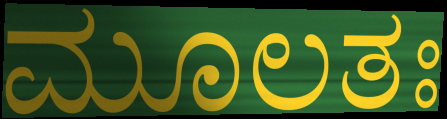
ಮೂಲತಃ